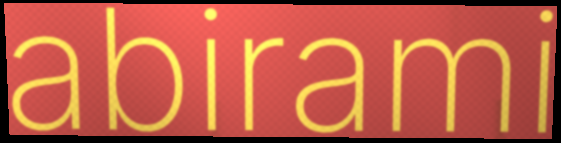
abirami